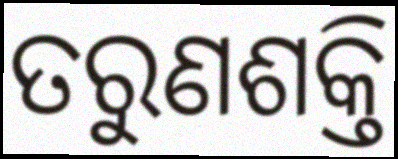
ତରୁଣଶକ୍ତି